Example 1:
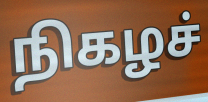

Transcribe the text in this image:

நிகழச்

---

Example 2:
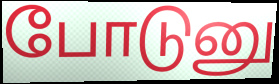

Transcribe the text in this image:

போடுனு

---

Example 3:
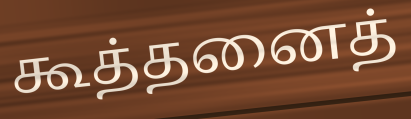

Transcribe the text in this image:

கூத்தனைத்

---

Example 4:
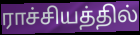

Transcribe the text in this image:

ராச்சியத்தில்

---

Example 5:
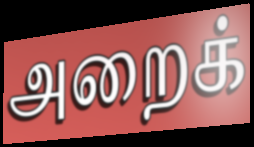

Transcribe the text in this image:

அறைக்